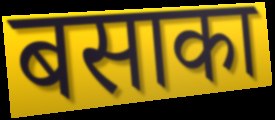
बसाका